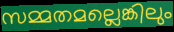
സമ്മതമല്ലെങ്കിലും